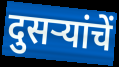
दुसऱ्यांचें